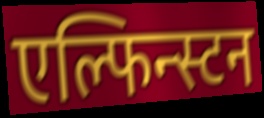
एल्फिन्स्टन